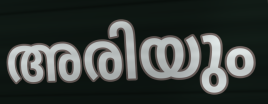
അരിയും